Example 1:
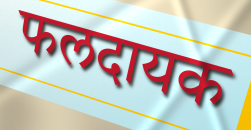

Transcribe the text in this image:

फलदायक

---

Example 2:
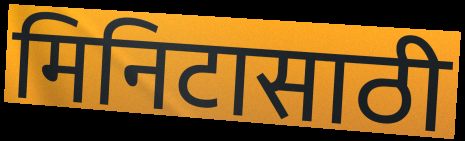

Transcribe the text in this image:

मिनिटासाठी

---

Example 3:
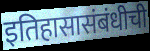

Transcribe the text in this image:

इतिहासासंबंधीची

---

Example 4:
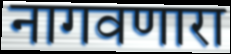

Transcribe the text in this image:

नागवणारा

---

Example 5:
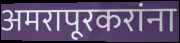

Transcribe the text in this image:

अमरापूरकरांना